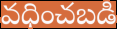
వధించబడి